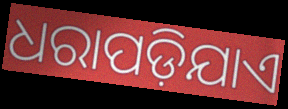
ଧରାପଡ଼ିଯାଏ